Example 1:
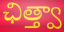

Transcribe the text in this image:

ఛిత్త్వా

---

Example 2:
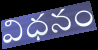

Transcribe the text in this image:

విధనం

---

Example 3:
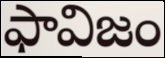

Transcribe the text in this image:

ఫావిజం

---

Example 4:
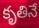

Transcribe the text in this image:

కృతినే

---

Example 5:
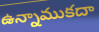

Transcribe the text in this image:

ఉన్నాముకదా